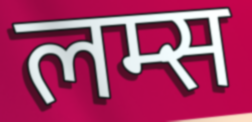
लम्स